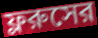
ফ্লরুসের